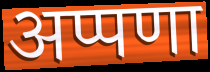
अप्पणा